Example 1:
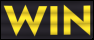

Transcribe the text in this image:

WIN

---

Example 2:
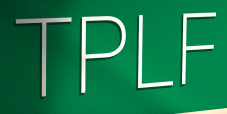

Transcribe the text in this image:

TPLF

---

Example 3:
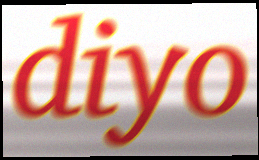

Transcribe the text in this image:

diyo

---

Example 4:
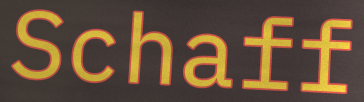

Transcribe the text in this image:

Schaff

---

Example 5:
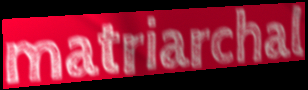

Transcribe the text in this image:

matriarchal